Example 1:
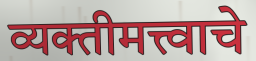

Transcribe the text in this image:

व्यक्तीमत्त्वाचे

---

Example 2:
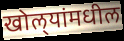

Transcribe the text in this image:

खोल्यांमधील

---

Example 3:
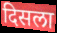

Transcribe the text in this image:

दिसला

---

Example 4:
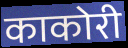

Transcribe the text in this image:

काकोरी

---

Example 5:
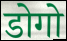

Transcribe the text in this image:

डोगो